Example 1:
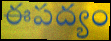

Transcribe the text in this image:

ఈపద్యం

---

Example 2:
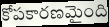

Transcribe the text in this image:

కోపకారణమైంది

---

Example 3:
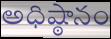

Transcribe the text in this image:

అధిష్ఠానం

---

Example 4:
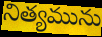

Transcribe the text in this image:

నిత్యమును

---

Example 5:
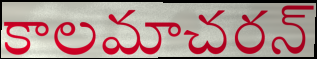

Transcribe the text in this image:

కాలమాచరన్